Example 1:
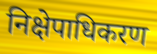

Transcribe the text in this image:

निक्षेपाधिकरण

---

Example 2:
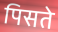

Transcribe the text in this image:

पिसते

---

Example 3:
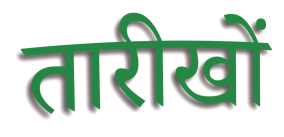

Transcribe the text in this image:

तारीखों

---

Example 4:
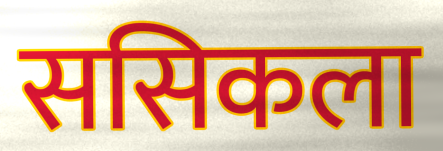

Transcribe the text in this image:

ससिकला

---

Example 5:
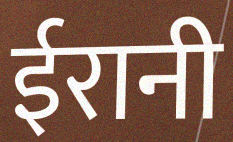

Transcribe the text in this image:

ईरानी